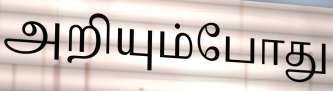
அறியும்போது